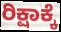
ರಿಕ್ಷಾಕ್ಕೆ